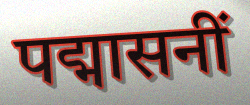
पद्मासनीं